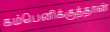
கம்பெனிக்குத்தான்